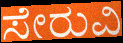
ಸೇರುವಿ